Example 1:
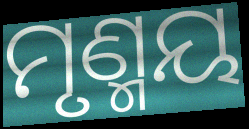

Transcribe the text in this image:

ମୃଣ୍ମୟ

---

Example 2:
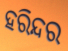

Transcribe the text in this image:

ହରିନ୍ଦର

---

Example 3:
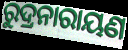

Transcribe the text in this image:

ରୁଦ୍ରନାରାୟଣ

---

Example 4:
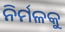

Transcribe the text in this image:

ନିର୍ମଳକୁ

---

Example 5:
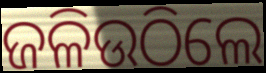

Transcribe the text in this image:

ଜଳିଉଠିଲେ